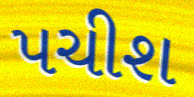
પચીશ